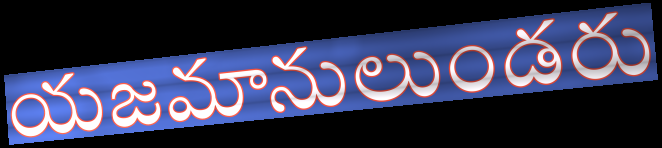
యజమానులుండరు